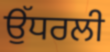
ਉੱਧਰਲੀ